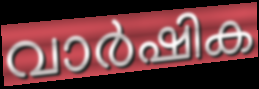
വാർഷിക